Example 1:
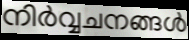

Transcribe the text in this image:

നിർവ്വചനങ്ങൾ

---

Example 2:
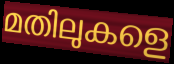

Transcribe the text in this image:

മതിലുകളെ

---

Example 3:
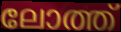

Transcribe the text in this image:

ലോത്ത്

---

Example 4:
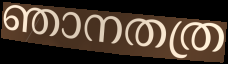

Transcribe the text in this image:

ഞാനതത്ര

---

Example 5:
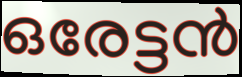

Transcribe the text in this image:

ഒരേട്ടൻ